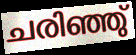
ചരിഞ്ഞു്